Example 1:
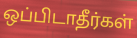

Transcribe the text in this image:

ஒப்பிடாதீர்கள்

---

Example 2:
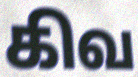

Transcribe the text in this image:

கிவ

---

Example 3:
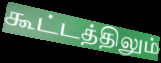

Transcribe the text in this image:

கூட்டத்திலும்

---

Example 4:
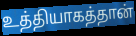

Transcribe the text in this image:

உத்தியாகத்தான்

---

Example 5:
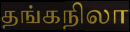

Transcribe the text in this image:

தங்கநிலா